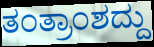
ತಂತ್ರಾಂಶದ್ದು